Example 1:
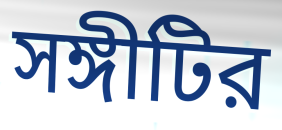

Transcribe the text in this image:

সঙ্গীটির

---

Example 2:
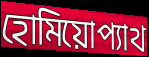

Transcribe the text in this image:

হোমিয়োপ্যাথ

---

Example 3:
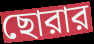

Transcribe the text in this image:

ছোরার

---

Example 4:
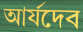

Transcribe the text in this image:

আর্যদেব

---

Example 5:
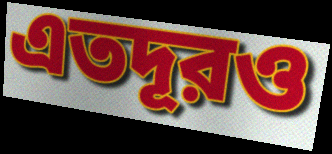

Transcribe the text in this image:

এতদূরও